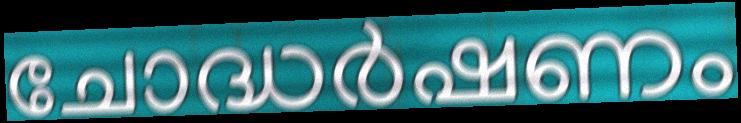
ചോദ്ധർഷണം